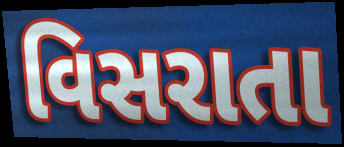
વિસરાતા